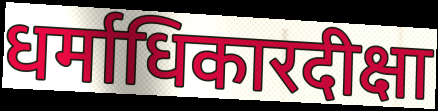
धर्माधिकारदीक्षा